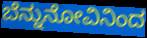
ಬೆನ್ನುನೋವಿನಿಂದ